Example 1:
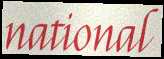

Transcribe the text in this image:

national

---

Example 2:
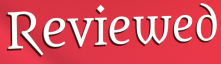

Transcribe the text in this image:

Reviewed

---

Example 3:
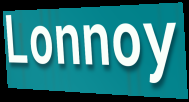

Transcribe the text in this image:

Lonnoy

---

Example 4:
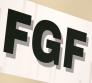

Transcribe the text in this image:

FGF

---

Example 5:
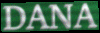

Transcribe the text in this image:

DANA